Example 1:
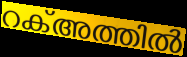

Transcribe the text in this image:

റക്അത്തിൽ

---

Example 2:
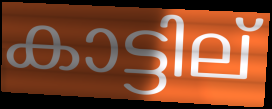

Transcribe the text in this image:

കാട്ടില്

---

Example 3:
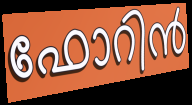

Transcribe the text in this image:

ഫോറിൻ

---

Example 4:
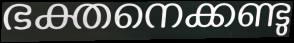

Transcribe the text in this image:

ഭക്തനെക്കണ്ടു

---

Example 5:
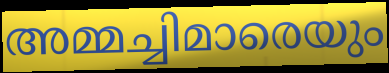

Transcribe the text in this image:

അമ്മച്ചിമാരെയും